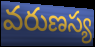
వరుణస్య